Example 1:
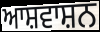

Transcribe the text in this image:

ਆਸ਼ਵਾਸ਼ਨ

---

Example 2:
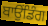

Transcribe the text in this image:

ਬਾਉਂਡਿੰਗ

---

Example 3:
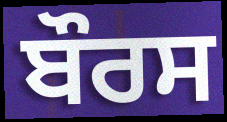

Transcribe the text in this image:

ਬੌਰਸ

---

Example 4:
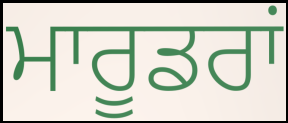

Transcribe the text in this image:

ਮਾਰੂਡਰਾਂ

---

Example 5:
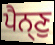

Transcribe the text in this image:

ਪੈਨ੍ਣੁ